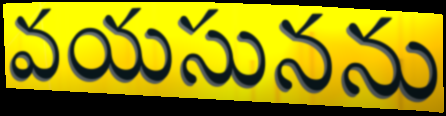
వయసునను